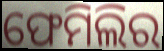
ଫେମିଲିର